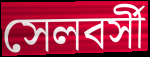
সেলবর্সী